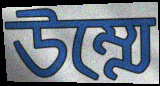
উম্মে